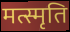
मत्स्मृति